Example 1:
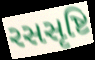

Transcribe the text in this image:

રસસૃષ્ટિ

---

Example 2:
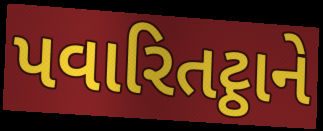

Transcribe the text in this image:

પવારિતટ્ઠાને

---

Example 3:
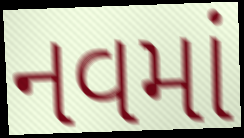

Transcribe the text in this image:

નવમાં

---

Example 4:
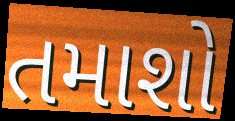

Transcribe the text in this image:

તમાશો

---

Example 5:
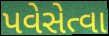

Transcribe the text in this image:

પવેસેત્વા